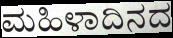
ಮಹಿಳಾದಿನದ